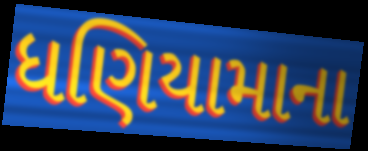
ધણિયામાના